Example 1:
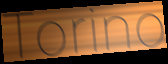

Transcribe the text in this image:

Torino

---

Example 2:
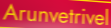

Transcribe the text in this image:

Arunvetrivel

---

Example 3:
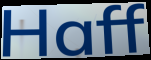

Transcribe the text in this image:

Haff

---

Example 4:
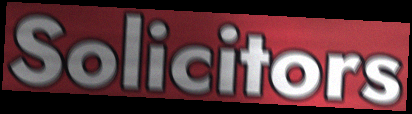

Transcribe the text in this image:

Solicitors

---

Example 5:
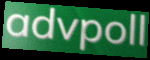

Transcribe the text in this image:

advpoll